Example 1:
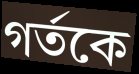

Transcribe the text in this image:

গর্তকে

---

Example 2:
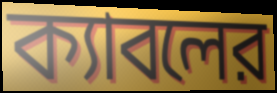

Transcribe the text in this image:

ক্যাবলের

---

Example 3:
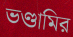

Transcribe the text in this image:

ভণ্ডামির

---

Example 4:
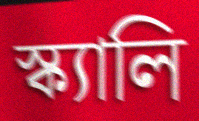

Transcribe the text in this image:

স্ক্যালি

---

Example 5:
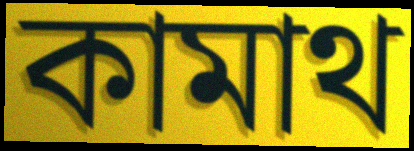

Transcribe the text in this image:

কামাথ